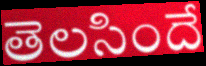
తెలసిందే